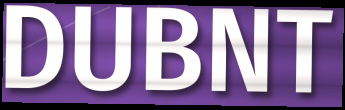
DUBNT